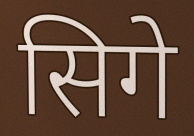
सिगे